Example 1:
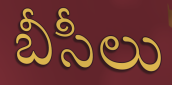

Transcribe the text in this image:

బీసీలు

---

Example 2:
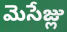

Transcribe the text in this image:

మెసేజ్లు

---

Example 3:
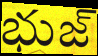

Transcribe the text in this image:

భుజ్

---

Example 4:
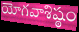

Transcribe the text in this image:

యోగవాశిష్ఠం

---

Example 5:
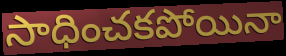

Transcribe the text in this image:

సాధించకపోయినా